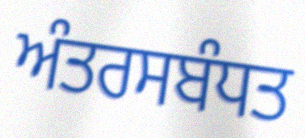
ਅੰਤਰਸਬੰਧਤ